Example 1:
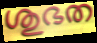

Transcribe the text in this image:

ശുഭത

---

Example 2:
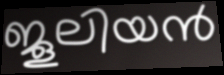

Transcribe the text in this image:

ജൂലിയൻ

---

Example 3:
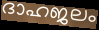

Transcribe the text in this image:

ദാഹജലം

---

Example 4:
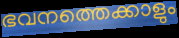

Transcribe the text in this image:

ഭവനത്തെക്കാളും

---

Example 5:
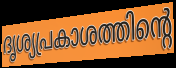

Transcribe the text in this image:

ദൃശ്യപ്രകാശത്തിന്റെ